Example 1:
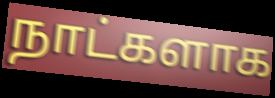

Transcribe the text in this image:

நாட்களாக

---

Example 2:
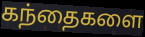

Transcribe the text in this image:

கந்தைகளை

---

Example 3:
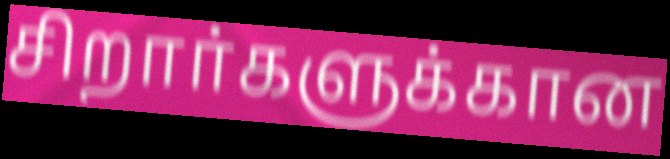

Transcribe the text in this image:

சிறார்களுக்கான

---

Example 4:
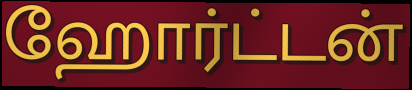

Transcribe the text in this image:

ஹோர்ட்டன்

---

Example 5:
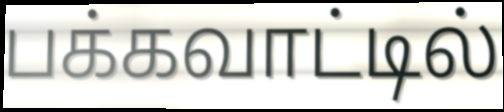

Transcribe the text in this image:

பக்கவாட்டில்